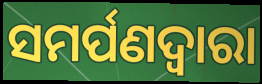
ସମର୍ପଣଦ୍ୱାରା